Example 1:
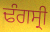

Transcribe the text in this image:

ਢੰਗਸ੍ਰੀ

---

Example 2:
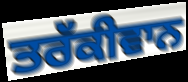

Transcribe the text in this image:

ਤਰੱਕੀਵਾਨ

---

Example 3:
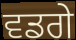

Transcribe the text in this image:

ਵਡਗੇ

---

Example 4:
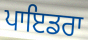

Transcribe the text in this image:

ਪਾਇਡਰਾ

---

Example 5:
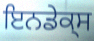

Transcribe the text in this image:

ਇਨਡੇਕ੍ਸ